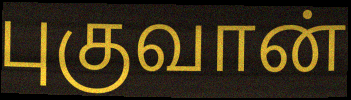
புகுவான்